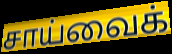
சாய்வைக்